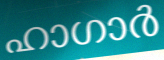
ഹാഗാർ